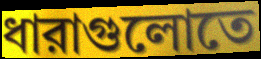
ধারাগুলোতে